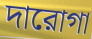
দারোগা